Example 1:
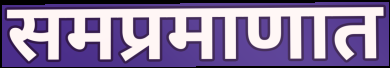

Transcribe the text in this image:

समप्रमाणात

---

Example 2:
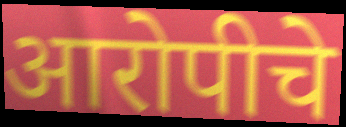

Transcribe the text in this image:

आरोपीचे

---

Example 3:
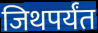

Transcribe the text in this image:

जिथपर्यंत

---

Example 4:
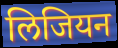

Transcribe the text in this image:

लिजियन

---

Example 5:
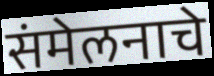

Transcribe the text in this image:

संमेलनाचे